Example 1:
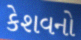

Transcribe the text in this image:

કેશવનો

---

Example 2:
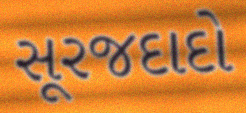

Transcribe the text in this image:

સૂરજદાદો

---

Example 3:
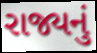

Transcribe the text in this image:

રાજ્યનું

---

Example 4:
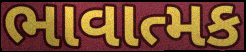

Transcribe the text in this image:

ભાવાત્મક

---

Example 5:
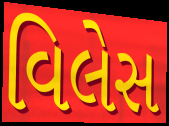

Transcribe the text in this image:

વિલેસ